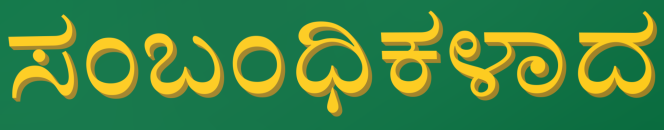
ಸಂಬಂಧಿಕಳಾದ